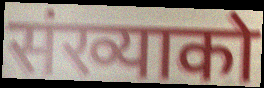
संख्याको